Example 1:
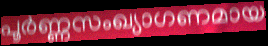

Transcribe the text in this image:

പൂർണ്ണസംഖ്യാഗണമായ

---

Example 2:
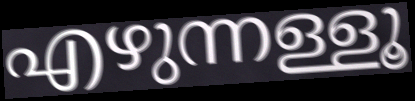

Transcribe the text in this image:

എഴുന്നള്ളൂ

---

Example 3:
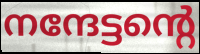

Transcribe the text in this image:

നന്ദേട്ടന്റെ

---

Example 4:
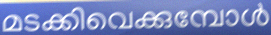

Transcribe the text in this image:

മടക്കിവെക്കുമ്പോൾ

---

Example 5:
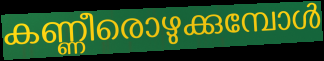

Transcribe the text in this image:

കണ്ണീരൊഴുക്കുമ്പോൾ